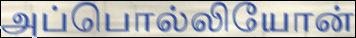
அப்பொல்லியோன்